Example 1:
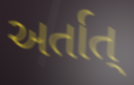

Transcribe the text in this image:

અર્તાત્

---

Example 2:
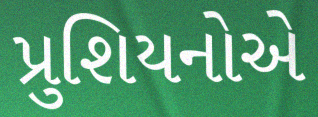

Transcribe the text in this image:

પ્રુશિયનોએ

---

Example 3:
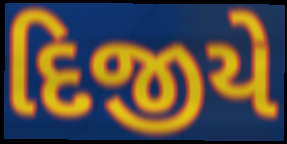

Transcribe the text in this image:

દિજીયે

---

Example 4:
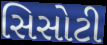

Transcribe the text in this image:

સિસોટી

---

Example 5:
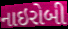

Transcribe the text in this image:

નાઇરોબી